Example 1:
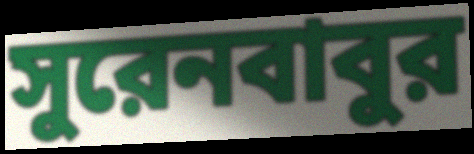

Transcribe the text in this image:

সুরেনবাবুর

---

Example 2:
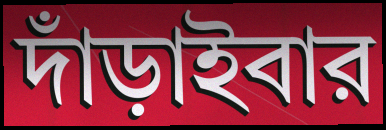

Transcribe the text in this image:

দাঁড়াইবার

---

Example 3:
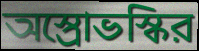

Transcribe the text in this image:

অস্ত্রোভস্কির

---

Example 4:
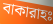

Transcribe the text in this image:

বাকারাহঃ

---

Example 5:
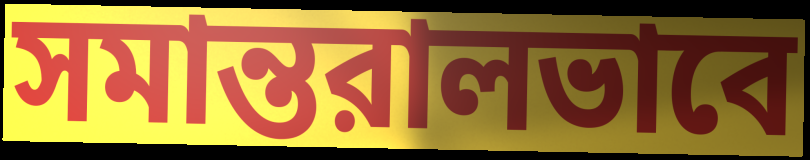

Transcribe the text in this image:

সমান্তরালভাবে